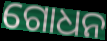
ଗୋଧନ